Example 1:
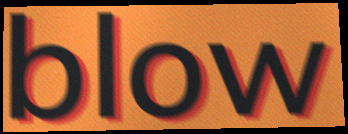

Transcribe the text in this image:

blow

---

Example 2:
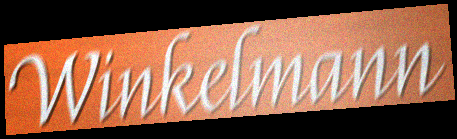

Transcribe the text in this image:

Winkelmann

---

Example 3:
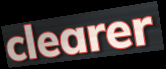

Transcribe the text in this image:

clearer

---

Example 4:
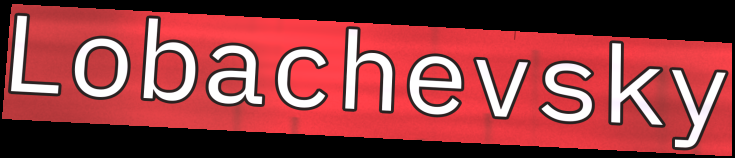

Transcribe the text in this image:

Lobachevsky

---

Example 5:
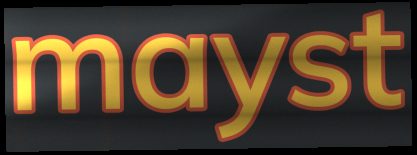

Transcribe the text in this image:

mayst